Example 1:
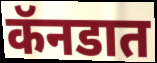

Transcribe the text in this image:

कॅनडात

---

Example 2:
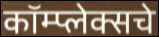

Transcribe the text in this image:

कॉम्प्लेक्सचे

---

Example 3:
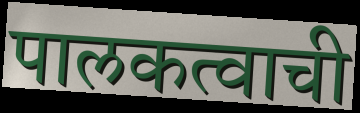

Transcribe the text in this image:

पालकत्वाची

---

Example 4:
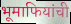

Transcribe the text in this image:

भूमाफियांची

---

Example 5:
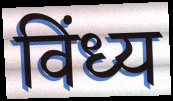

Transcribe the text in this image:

विंध्य